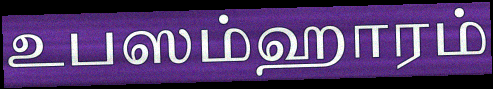
உபஸம்ஹாரம்